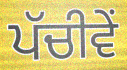
ਪੱਚੀਵੇਂ